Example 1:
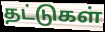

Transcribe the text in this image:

தட்டுகள்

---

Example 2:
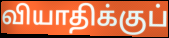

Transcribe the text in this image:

வியாதிக்குப்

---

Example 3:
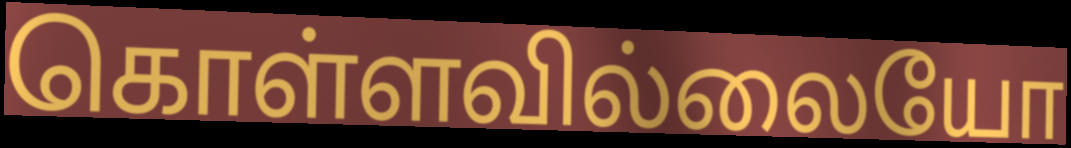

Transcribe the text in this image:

கொள்ளவில்லையோ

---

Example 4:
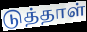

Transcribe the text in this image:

டுத்தாள்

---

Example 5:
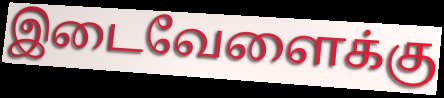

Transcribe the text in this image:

இடைவேளைக்கு